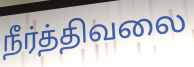
நீர்த்திவலை